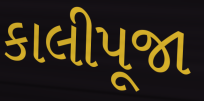
કાલીપૂજા